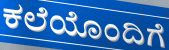
ಕಲೆಯೊಂದಿಗೆ